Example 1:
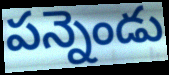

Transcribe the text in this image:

పన్నెండు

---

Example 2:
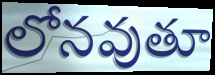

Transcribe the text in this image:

లోనవుతూ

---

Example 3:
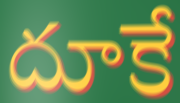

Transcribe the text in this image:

దూకే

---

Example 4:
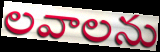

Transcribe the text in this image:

లవాలను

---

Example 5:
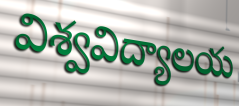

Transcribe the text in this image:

విశ్వవిద్యాలయ